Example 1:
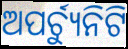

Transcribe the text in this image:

ଅପର୍ଚ୍ୟୁନିଟି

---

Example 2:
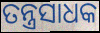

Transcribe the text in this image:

ତନ୍ତ୍ରସାଧକ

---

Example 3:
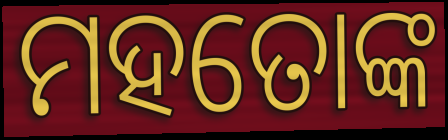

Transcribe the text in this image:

ମହତୋଙ୍କ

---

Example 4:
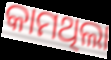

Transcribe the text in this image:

କାମଥିଲା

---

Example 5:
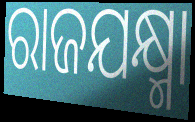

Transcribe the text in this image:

ରାଜଯକ୍ଷ୍ମା